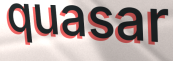
quasar